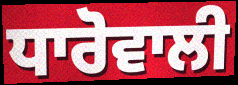
ਧਾਰੋਵਾਲੀ